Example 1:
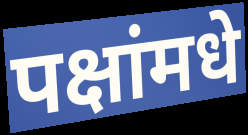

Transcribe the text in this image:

पक्षांमधे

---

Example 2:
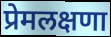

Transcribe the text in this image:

प्रेमलक्षणा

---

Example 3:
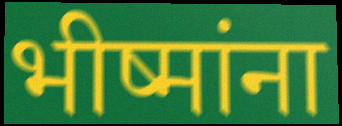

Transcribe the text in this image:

भीष्मांना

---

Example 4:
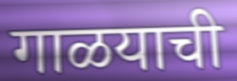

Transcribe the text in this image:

गाळयाची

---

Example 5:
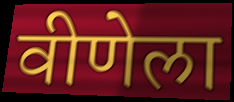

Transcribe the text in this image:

वीणेला